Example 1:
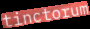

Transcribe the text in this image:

tinctorum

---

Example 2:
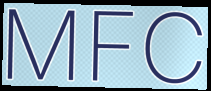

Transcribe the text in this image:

MFC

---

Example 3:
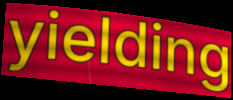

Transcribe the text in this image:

yielding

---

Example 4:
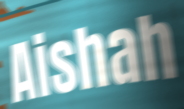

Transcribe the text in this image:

Aishah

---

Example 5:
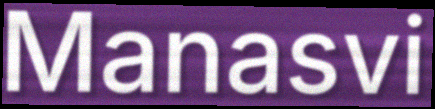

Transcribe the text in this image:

Manasvi